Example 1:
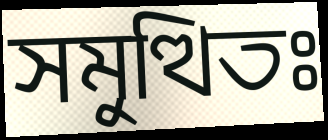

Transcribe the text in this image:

সমুত্থিতঃ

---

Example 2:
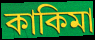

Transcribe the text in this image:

কাকিমা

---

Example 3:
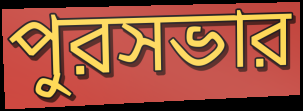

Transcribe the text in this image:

পুরসভার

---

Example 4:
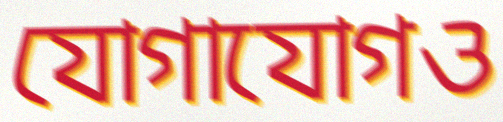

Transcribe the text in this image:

যোগাযোগও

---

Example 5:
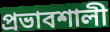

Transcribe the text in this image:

প্রভাবশালী